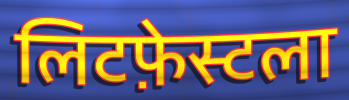
लिटफ़ेस्टला